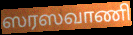
ஸரஸவாணி